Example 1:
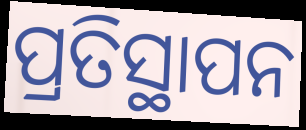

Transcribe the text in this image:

ପ୍ରତିସ୍ଥାପନ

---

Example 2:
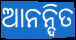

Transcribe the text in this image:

ଆନନ୍ଦିତ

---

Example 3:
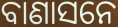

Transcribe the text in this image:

ବାଣାସନେ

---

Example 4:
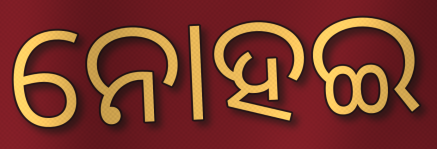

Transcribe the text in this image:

ନୋହଇ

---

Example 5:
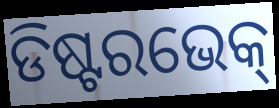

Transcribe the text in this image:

ଡିଷ୍ଟରଭେକ୍